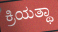
ಕ್ರಿಯತ್ಥಾ